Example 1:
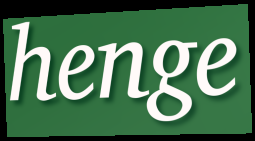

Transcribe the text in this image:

henge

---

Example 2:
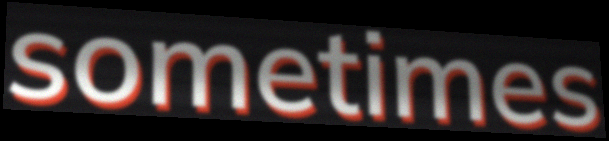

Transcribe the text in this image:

sometimes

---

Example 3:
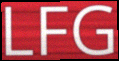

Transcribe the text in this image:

LFG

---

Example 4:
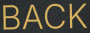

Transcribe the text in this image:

BACK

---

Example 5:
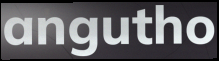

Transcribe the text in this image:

angutho